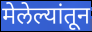
मेलेल्यांतून